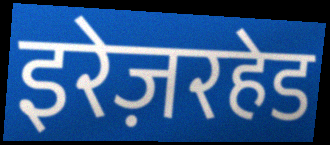
इरेज़रहेड